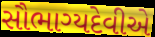
સૌભાગ્યદેવીએ